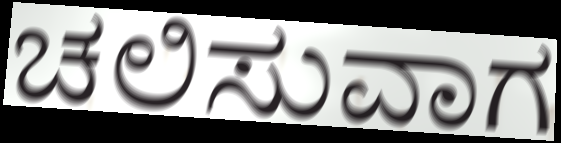
ಚಲಿಸುವಾಗ